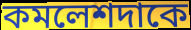
কমলেশদাকে